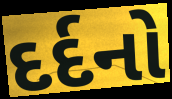
દર્દનો